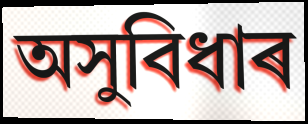
অসুবিধাৰ